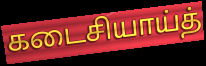
கடைசியாய்த்